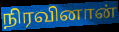
நிரவினான்